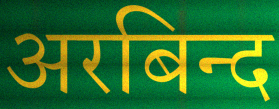
अरबिन्द